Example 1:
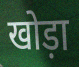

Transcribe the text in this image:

खोड़ा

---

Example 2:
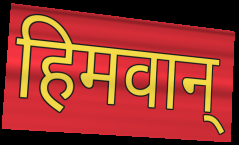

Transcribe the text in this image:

हिमवान्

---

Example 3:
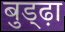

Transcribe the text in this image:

बुड्ढ़ा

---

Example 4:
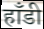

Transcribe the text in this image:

हाँडी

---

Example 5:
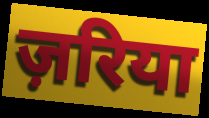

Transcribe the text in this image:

ज़रिया